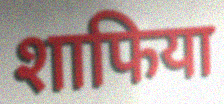
शाफिया